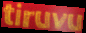
tiruvu